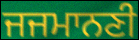
ਜਜਮਾਨਣੀ